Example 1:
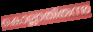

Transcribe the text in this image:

കൊല്ലാതിരുന്നു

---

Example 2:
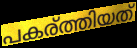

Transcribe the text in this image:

പകര്ത്തിയത്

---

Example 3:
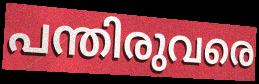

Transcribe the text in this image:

പന്തിരുവരെ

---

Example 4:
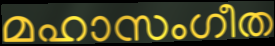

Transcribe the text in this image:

മഹാസംഗീത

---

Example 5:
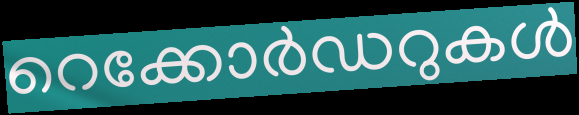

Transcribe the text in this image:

റെക്കോർഡറുകൾ